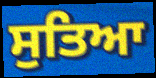
ਸੁਤਿਆ